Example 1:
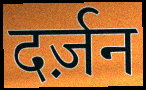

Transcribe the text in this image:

दर्ज़न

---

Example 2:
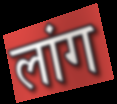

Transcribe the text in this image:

लांग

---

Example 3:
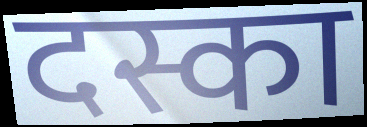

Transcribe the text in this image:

दस्का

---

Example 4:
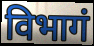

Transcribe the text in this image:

विभागं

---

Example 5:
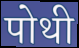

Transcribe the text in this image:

पोथी